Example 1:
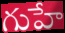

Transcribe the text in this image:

గుహే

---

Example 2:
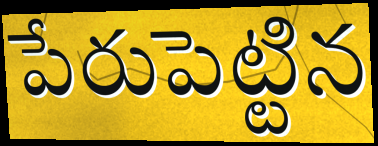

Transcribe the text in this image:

పేరుపెట్టిన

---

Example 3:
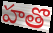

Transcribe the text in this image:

హతొ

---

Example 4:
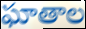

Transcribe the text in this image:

ఘాతాల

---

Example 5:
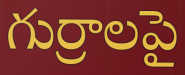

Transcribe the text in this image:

గుర్రాలపై